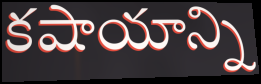
కషాయాన్ని